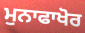
ਮੁਨਾਫਾਖੋਰ